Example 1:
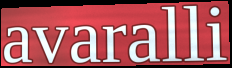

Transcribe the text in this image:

avaralli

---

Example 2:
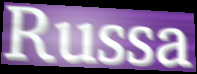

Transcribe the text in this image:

Russa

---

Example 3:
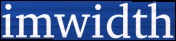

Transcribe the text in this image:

imwidth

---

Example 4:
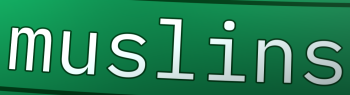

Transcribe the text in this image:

muslins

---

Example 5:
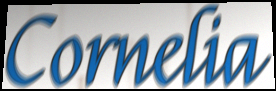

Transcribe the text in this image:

Cornelia